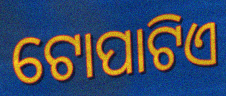
ଟୋପାଟିଏ